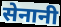
सेनानी